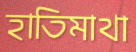
হাতিমাথা